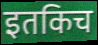
इतकिच